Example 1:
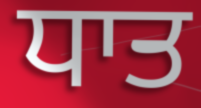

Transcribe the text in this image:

ਧਾਤ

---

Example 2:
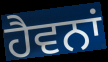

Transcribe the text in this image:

ਹੈਵਨਾਂ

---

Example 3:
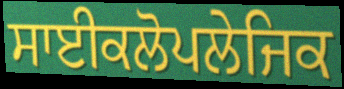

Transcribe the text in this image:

ਸਾਈਕਲੋਪਲੇਜਿਕ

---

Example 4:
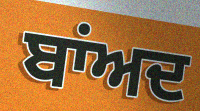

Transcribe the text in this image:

ਬਾਂਅਦ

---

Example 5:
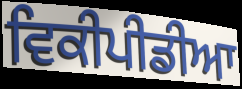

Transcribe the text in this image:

ਵਿਕੀਪੀਡੀਆ